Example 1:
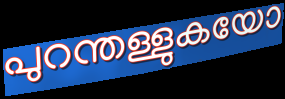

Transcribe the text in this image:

പുറന്തള്ളുകയോ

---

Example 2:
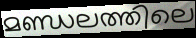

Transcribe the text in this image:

മണ്ഡലത്തിലെ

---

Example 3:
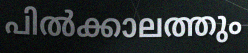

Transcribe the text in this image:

പിൽക്കാലത്തും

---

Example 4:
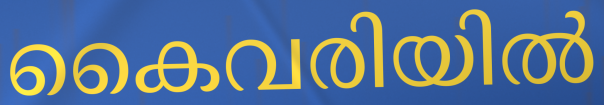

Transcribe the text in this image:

കൈവരിയിൽ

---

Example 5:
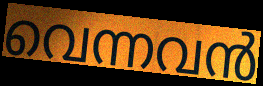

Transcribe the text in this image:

വെന്നവൻ